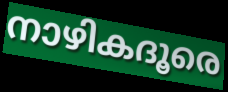
നാഴികദൂരെ